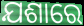
ଯଶାରେ